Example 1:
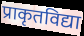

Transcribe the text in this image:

प्राकृतविद्या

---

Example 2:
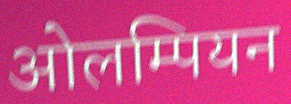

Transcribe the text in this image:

ओलम्पियन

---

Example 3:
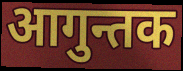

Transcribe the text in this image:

आगुन्तक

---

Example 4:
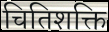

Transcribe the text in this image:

चितिशक्ति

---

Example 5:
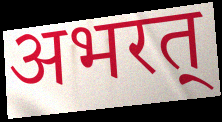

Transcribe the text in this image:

अभरत्